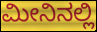
ಮೀನಿನಲ್ಲಿ